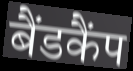
बैंडकैंप